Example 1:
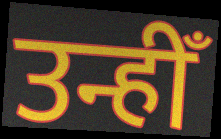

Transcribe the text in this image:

उन्हीँ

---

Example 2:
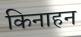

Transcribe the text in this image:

किनाहन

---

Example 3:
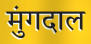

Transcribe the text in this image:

मुंगदाल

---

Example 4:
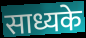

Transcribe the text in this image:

साध्यके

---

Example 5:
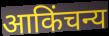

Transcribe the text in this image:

आकिंचन्य